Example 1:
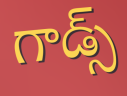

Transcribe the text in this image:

గాడ్స్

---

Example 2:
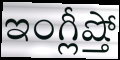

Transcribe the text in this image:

ఇంగ్లీష్తో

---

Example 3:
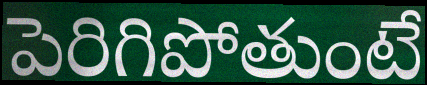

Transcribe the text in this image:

పెరిగిపోతుంటే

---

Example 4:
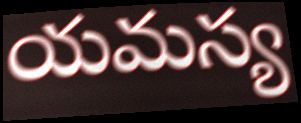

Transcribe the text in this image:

యమస్య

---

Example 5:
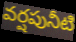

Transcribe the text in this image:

వర్షపునీటి